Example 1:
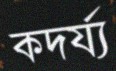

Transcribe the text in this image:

কদর্য্য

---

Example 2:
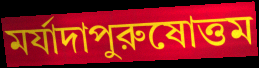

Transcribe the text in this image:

মর্যাদাপুরুষোত্তম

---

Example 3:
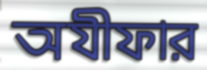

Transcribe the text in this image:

অযীফার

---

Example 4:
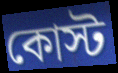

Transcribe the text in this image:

কোস্ট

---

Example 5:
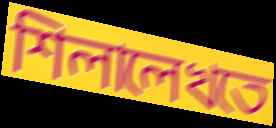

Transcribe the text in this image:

শিলালেখতে